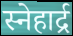
स्नेहार्द्र